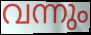
വന്നും